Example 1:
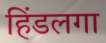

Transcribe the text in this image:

हिंडलगा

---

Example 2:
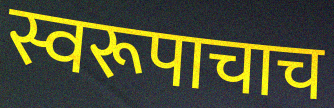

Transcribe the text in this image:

स्वरूपाचाच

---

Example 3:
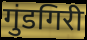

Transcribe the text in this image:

गुंडगिरी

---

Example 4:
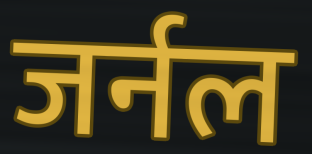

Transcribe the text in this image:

जर्नल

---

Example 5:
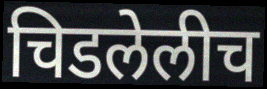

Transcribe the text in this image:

चिडलेलीच